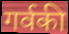
गर्वकी